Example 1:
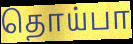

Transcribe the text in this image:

தொய்பா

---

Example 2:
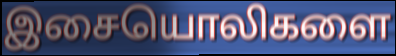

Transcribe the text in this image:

இசையொலிகளை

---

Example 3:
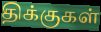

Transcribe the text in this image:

திக்குகள்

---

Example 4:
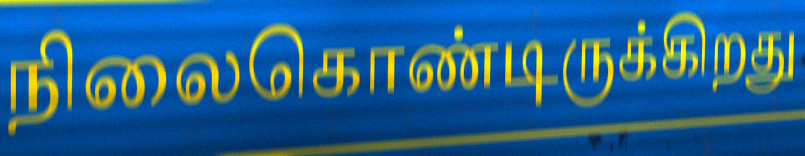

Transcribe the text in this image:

நிலைகொண்டிருக்கிறது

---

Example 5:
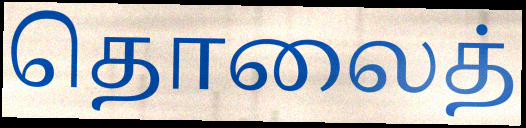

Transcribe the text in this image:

தொலைத்